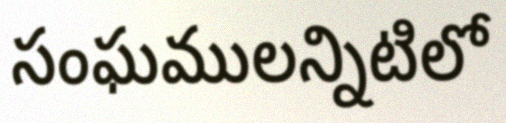
సంఘములన్నిటిలో